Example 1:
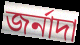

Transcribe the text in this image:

জর্নাদা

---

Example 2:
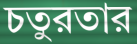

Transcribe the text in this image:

চতুরতার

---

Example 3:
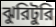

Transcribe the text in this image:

ঝুরিটুরি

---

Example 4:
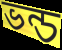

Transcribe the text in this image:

ভন্ড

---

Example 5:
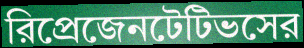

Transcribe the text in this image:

রিপ্রেজেনটেটিভসের